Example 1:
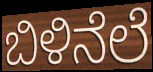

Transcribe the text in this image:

ಬಿಳಿನೆಲೆ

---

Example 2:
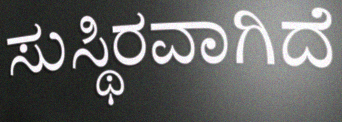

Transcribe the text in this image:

ಸುಸ್ಥಿರವಾಗಿದೆ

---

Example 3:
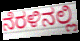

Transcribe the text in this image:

ನೆರಳಿನಲ್ಲಿ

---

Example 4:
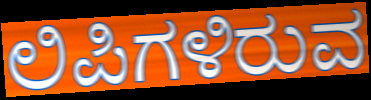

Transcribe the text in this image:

ಲಿಪಿಗಳಿರುವ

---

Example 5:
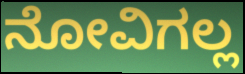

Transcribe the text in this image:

ನೋವಿಗಲ್ಲ